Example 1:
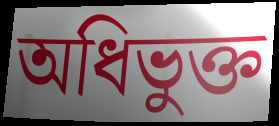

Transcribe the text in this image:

অধিভুক্ত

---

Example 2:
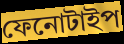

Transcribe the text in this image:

ফেনোটাইপ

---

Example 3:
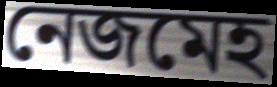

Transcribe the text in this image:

নেজমেহ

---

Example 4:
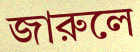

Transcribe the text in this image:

জারুলে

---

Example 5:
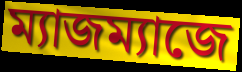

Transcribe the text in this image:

ম্যাজম্যাজে